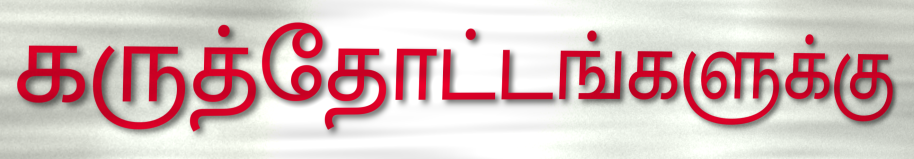
கருத்தோட்டங்களுக்கு